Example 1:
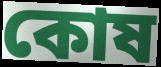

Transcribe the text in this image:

কোষ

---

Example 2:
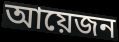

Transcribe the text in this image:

আয়েজন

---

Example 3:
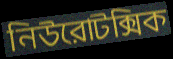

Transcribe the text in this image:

নিউরোটক্সিক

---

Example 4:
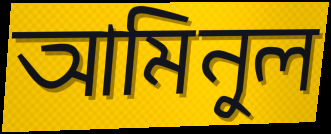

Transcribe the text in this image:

আমিনুল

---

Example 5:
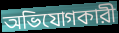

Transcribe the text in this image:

অভিযোগকারী